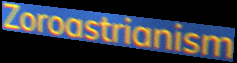
Zoroastrianism